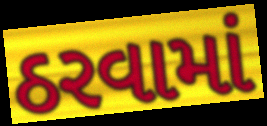
ઠરવામાં